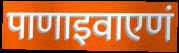
पाणाइवाएणं